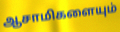
ஆசாமிகளையும்